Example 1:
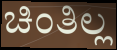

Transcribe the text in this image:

ಚಿಂತಿಲ್ಲ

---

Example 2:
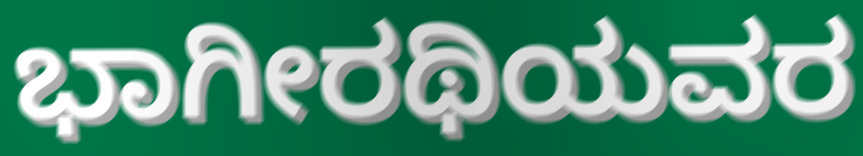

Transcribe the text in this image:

ಭಾಗೀರಥಿಯವರ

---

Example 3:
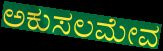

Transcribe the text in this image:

ಅಕುಸಲಮೇವ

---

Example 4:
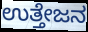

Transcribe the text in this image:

ಉತ್ತೇಜನ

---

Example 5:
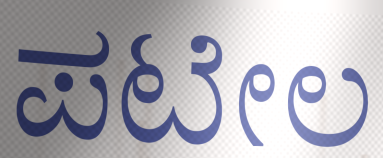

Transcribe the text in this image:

ಪಟೇಲ